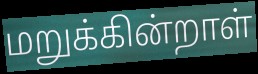
மறுக்கின்றாள்